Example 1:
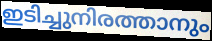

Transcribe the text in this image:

ഇടിച്ചുനിരത്താനും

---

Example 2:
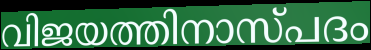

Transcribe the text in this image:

വിജയത്തിനാസ്പദം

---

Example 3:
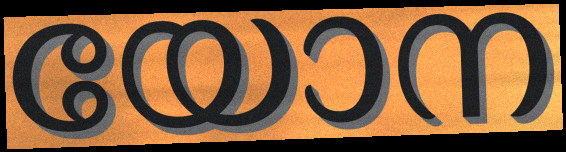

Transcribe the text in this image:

യോന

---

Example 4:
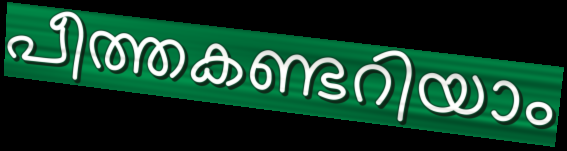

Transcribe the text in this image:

പീത്തകണ്ടറിയാം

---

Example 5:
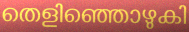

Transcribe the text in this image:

തെളിഞ്ഞൊഴുകി